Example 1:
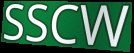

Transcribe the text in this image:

SSCW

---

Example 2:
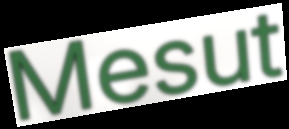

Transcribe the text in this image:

Mesut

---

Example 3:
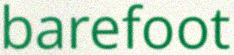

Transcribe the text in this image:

barefoot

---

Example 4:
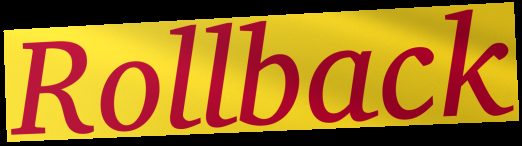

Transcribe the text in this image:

Rollback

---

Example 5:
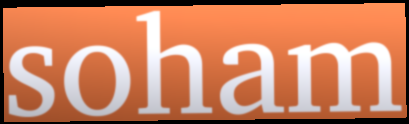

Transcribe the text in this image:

soham